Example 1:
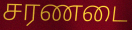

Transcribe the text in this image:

சரணடை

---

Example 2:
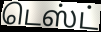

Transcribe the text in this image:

டெஸ்ட்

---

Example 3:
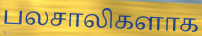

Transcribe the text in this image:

பலசாலிகளாக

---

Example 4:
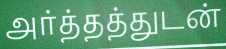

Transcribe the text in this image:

அர்த்தத்துடன்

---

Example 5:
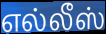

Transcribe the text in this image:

எல்லீஸ்